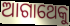
ଆଗାଥେକୁ